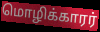
மொழிக்காரர்